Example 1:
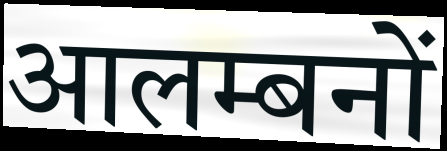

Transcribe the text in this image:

आलम्बनों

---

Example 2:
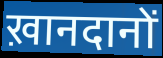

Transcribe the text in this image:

ख़ानदानों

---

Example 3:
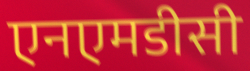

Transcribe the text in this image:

एनएमडीसी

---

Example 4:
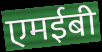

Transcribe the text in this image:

एमईबी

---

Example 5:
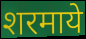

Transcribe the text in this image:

शरमाये